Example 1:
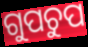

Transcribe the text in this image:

ଗୁପଚୁପ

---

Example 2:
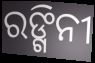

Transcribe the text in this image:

ରଙ୍ଗିନୀ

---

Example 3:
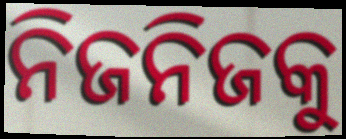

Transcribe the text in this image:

ନିଜନିଜକୁ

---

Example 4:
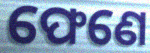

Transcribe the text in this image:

ଫେଣେ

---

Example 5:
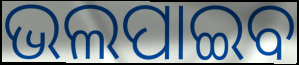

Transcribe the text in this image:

ଭଲପାଇବ